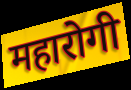
महारोगी